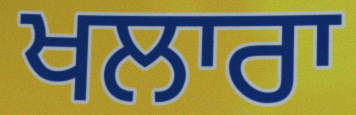
ਖਲਾਰਾ